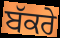
ਬੱਕਰੇ